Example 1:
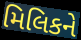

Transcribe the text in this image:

મિલિકને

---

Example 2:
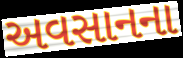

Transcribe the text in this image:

અવસાનના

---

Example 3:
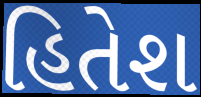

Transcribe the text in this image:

હિતેશ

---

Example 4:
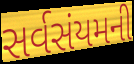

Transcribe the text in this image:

સર્વસંયમની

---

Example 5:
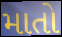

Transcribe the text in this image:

માતો